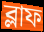
ব্লাফ